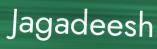
Jagadeesh